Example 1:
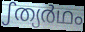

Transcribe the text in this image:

ഽത്യർഥം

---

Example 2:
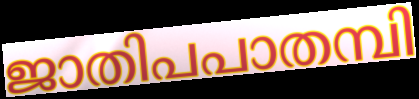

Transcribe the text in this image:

ജാതിപപാതമ്പി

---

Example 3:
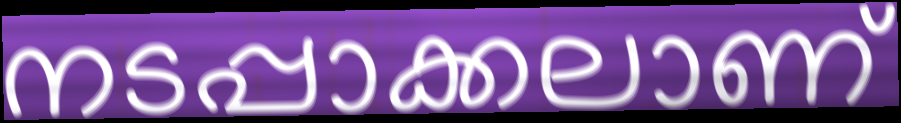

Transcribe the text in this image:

നടപ്പാക്കലാണ്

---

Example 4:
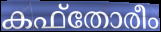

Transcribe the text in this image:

കഫ്തോരീം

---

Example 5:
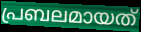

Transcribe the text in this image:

പ്രബലമായത്